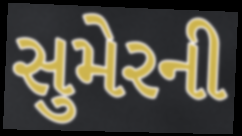
સુમેરની